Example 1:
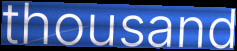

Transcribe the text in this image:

thousand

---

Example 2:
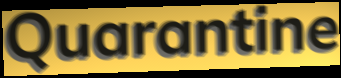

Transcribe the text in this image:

Quarantine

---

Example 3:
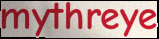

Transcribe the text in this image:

mythreye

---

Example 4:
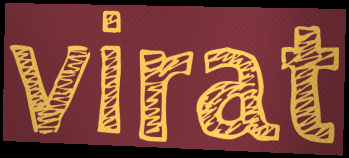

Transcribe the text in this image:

virat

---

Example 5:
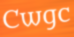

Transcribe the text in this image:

Cwgc